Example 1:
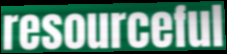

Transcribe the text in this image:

resourceful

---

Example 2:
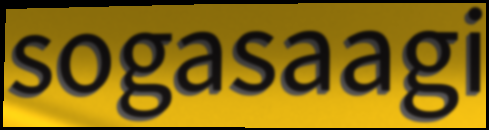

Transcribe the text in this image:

sogasaagi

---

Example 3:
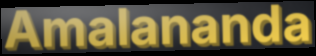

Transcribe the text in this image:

Amalananda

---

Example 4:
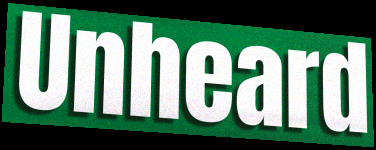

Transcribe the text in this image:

Unheard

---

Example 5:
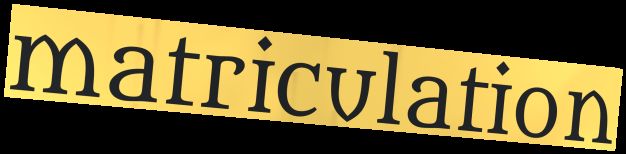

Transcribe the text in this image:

matriculation